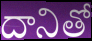
దానితో